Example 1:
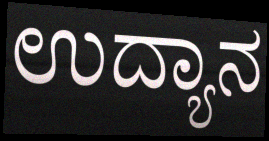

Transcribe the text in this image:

ಉದ್ಯಾನ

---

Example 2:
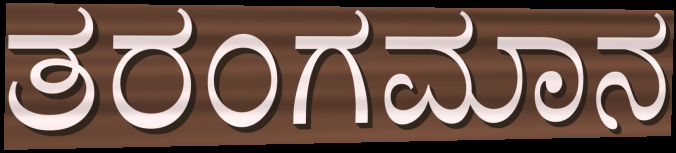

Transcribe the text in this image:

ತರಂಗಮಾನ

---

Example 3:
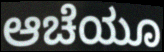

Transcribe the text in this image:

ಆಚೆಯೂ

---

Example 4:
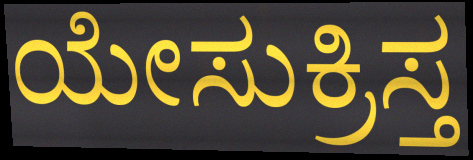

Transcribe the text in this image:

ಯೇಸುಕ್ರಿಸ್ತ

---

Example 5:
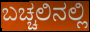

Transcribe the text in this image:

ಬಚ್ಚಲಿನಲ್ಲಿ